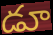
డూ